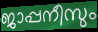
ജാപ്പനീസും